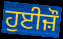
ਹੁਈਜ਼ੌ